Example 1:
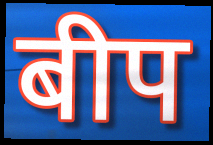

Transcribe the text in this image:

बीप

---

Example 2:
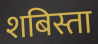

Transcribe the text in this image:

शबिस्ता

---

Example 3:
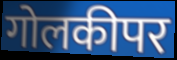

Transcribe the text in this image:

गोलकीपर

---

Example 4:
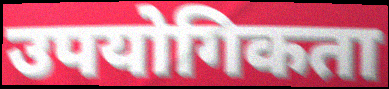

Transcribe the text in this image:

उपयोगिकता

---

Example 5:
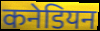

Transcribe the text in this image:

कनेडियन